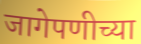
जागेपणीच्या